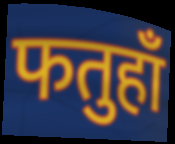
फतुहाँ